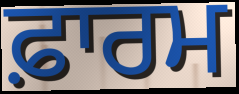
ਫ਼ਾਰਮ